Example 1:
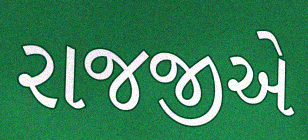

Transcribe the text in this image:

રાજજીએ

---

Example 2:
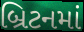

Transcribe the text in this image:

બ્રિટનમાં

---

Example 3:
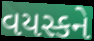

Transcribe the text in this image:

વયસ્કને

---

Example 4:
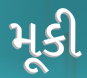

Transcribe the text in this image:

મૂકી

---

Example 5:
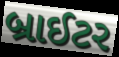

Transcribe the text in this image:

બ્રાઈટર